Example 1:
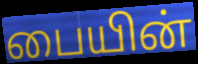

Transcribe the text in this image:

பையின்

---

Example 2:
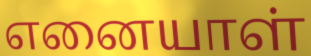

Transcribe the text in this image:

எனையாள்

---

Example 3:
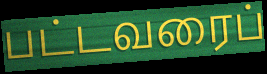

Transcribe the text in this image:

பட்டவரைப்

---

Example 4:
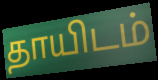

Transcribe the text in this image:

தாயிடம்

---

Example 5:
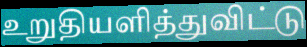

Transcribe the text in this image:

உறுதியளித்துவிட்டு